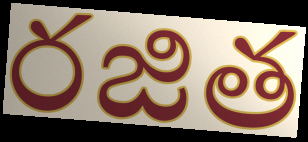
రజిత